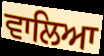
ਵਾਲਿਆ